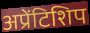
अप्रेंटिशिप